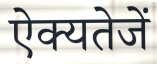
ऐक्यतेजें